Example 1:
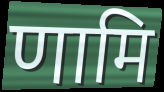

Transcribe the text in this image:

णामि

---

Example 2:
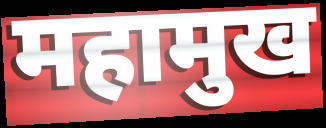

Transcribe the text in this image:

महामुख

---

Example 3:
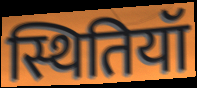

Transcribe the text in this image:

स्थितियॉ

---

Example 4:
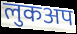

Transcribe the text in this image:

लुकअप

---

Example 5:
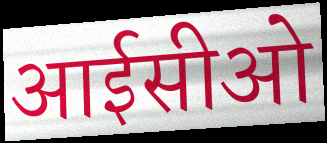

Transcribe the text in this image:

आईसीओ